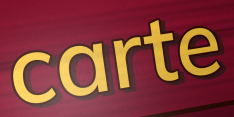
carte